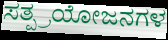
ಸತ್ಪ್ರಯೋಜನಗಳ